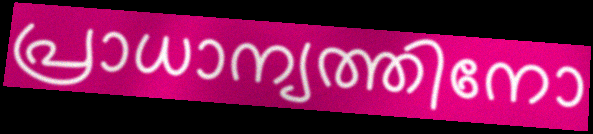
പ്രാധാന്യത്തിനോ